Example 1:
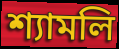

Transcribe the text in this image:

শ্যামলি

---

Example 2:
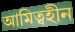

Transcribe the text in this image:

আমিত্বহীন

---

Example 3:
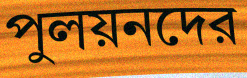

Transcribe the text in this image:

পুলয়নদের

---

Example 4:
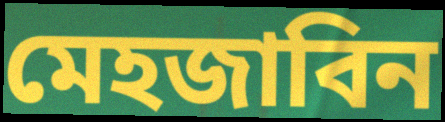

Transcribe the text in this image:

মেহজাবিন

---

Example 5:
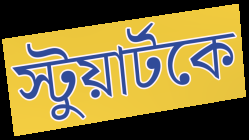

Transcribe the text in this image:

স্টুয়ার্টকে